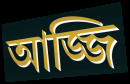
আজ্জি